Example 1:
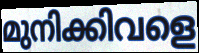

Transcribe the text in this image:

മുനിക്കിവളെ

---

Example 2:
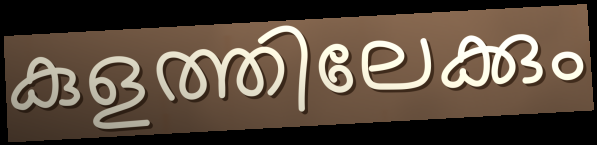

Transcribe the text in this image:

കുളത്തിലേക്കും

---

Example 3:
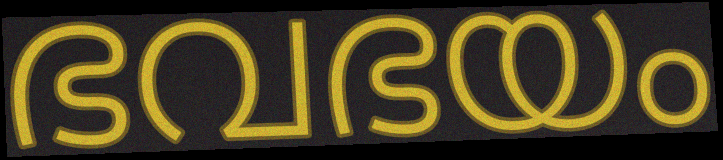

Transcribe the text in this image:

ഭവഭയം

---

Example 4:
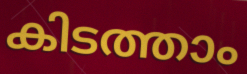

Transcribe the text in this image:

കിടത്താം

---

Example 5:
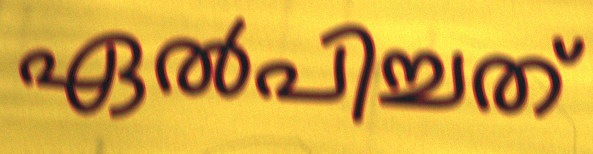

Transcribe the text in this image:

ഏൽപിച്ചത്